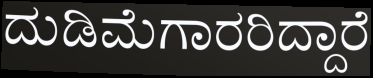
ದುಡಿಮೆಗಾರರಿದ್ದಾರೆ